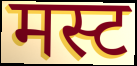
मस्ट